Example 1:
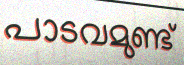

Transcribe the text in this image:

പാടവമുണ്ട്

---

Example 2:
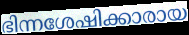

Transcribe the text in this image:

ഭിന്നശേഷിക്കാരായ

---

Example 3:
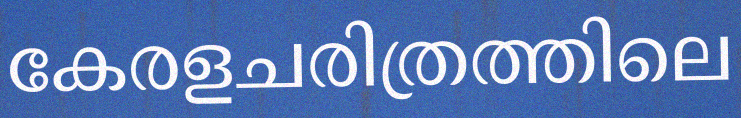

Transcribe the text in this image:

കേരളചരിത്രത്തിലെ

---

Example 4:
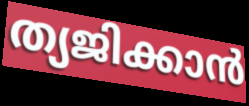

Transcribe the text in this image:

ത്യജിക്കാൻ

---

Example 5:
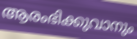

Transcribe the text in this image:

ആരംഭിക്കുവാനും